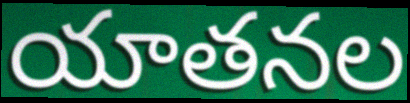
యాతనల